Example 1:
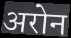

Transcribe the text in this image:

अरोन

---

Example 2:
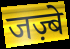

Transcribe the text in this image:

जज़्बे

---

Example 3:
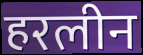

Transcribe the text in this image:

हरलीन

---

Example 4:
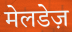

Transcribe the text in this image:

मेलडेज़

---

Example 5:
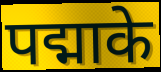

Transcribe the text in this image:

पद्माके